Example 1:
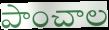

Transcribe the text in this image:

పాంచాల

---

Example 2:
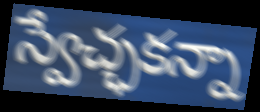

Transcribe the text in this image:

స్వేచ్ఛకన్నా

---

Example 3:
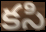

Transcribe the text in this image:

కసి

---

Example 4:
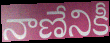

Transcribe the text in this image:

నాణేనికీ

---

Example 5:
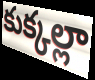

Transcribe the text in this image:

కుక్కల్లా